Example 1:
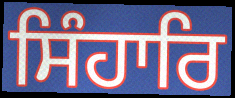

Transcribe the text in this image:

ਸਿੰਹਾਰਿ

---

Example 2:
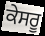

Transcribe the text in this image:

ਕੇਸਰੂ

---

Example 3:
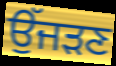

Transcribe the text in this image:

ਉੱਜੜਣ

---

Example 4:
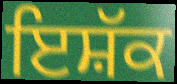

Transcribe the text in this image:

ਇਸ਼ੱਕ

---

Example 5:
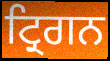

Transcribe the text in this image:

ਟ੍ਰਿਗਨ